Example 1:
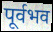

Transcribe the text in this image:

पूर्वभव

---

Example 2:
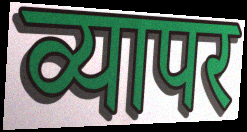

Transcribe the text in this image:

व्यापर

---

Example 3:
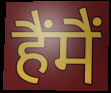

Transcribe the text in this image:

हैंमैं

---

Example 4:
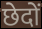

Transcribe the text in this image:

छेदों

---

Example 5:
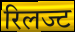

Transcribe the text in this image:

रिलज्ट